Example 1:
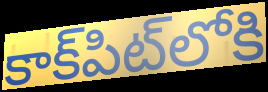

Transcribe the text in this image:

కాక్‌పిట్‌లోకి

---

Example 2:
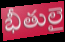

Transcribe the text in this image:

భీతులై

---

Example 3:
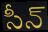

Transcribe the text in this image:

సీన్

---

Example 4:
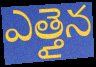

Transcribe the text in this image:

ఎత్తైన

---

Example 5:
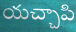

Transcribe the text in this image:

యచ్చాపి